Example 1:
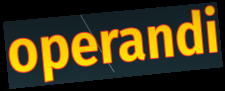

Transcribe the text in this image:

operandi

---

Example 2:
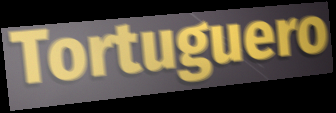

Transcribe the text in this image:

Tortuguero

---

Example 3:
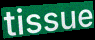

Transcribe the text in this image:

tissue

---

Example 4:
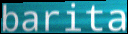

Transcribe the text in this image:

barita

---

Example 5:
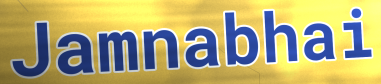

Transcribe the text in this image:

Jamnabhai